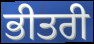
ਭੀਤਰੀ